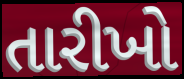
તારીખો